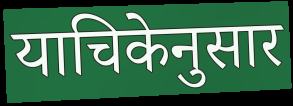
याचिकेनुसार